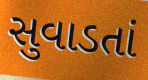
સુવાડતાં